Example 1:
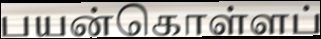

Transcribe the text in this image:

பயன்கொள்ளப்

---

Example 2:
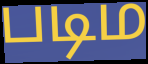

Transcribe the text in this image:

படிம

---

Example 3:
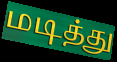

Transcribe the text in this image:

மடித்து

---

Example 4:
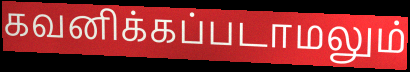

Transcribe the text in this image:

கவனிக்கப்படாமலும்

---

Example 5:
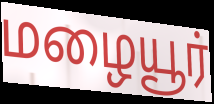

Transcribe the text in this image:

மழையூர்